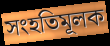
সংহতিমূলক